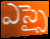
ఎస్సై